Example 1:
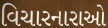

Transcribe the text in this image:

વિચારનારાઓ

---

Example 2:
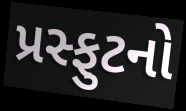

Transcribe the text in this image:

પ્રસ્ફુટનો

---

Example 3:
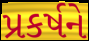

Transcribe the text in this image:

પ્રકર્ષને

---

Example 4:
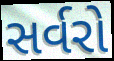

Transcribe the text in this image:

સર્વરો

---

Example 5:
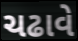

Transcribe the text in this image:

ચઢાવે